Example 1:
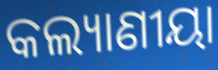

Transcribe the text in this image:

କଲ୍ୟାଣୀୟା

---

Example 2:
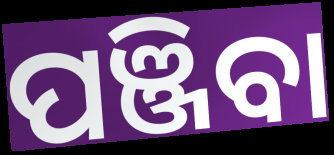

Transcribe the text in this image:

ପଞ୍ଜିବା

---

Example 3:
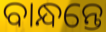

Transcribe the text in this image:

ବାନ୍ଧନ୍ତେ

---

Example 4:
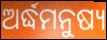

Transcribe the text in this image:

ଅର୍ଦ୍ଧମନୁଷ୍ୟ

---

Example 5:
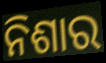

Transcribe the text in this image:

ନିଶାର